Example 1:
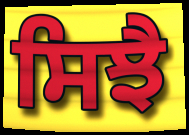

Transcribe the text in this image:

ਸਿਝੈ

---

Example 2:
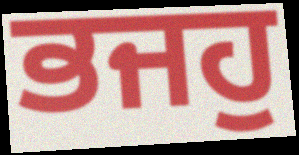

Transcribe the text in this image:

ਭਜਹੁ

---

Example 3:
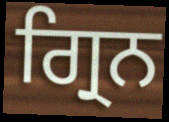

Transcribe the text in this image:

ਗ੍ਰਿਨ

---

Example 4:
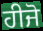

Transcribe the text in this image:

ਹੀਜੋ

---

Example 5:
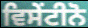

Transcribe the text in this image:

ਵਿਸੇਂਟੀਨੋ